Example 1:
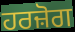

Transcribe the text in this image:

ਹਰਜ਼ੋਗ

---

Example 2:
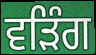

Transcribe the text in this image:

ਵੜਿੰਗ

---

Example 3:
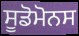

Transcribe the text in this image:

ਸੂਡੋਮੋਨਸ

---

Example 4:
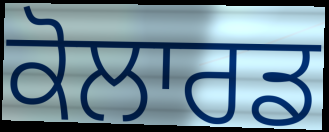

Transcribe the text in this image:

ਕੋਲਾਰਡ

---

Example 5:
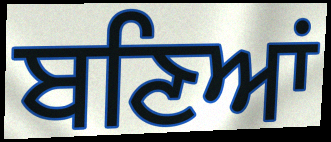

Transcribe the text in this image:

ਬਣਿਆਂ